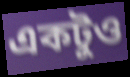
একটুও